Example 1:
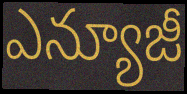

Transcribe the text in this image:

ఎన్యూజీ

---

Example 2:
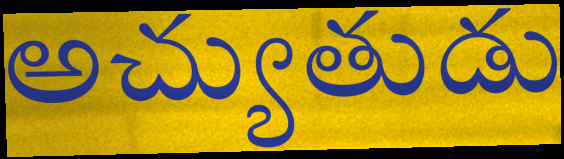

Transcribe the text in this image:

అచ్యుతుడు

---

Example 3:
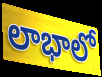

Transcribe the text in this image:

లాభాలో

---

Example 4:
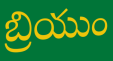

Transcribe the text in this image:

బ్రియుం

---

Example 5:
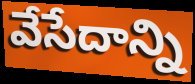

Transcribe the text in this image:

వేసేదాన్ని